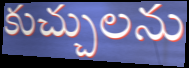
కుచ్చులను